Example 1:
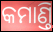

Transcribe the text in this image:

କମାଣ୍ତି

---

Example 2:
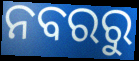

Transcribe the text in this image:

ନବରରୁ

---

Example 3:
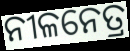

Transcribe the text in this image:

ନୀଳନେତ୍ର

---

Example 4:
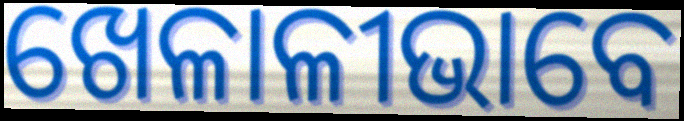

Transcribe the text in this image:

ଖେଳାଳୀଭାବେ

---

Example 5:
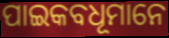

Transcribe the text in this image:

ପାଇକବଧୂମାନେ